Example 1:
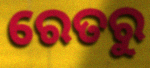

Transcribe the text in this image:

ରେତରୁ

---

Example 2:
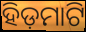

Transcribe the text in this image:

ହିଡ଼ମାଟି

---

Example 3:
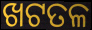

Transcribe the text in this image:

ଖଟତଳ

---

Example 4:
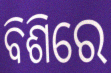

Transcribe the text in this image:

ବିଶିରେ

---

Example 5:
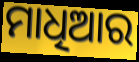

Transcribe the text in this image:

ମାଧିଆର